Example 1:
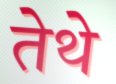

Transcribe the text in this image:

तेथे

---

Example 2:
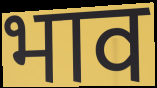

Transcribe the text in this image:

भाव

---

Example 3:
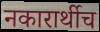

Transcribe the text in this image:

नकारार्थीच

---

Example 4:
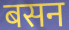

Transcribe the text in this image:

बसन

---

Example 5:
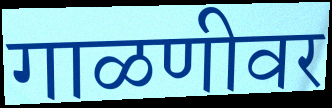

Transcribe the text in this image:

गाळणीवर